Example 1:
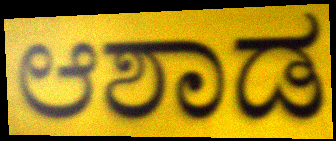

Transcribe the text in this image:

ಆಶಾಡ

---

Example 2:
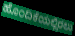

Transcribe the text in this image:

ಹೊಂದಿಕೆಯಲ್ಲಿರಲು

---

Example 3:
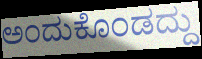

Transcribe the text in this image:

ಅಂದುಕೊಂಡದ್ದು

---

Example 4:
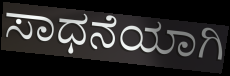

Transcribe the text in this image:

ಸಾಧನೆಯಾಗಿ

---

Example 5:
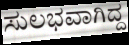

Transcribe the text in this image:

ಸುಲಭವಾಗಿದ್ದ